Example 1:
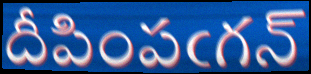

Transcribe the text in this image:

దీపింపఁగన్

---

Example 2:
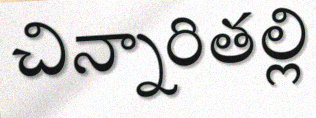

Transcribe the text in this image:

చిన్నారితల్లి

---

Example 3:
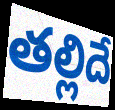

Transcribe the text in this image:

తల్లిదే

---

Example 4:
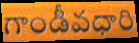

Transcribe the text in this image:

గాండీవధారి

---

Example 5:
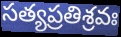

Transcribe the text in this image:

సత్యప్రతిశ్రవః